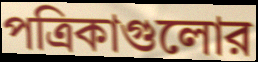
পত্রিকাগুলোর